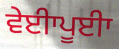
ਵੇਈਾਪੂਈਾ